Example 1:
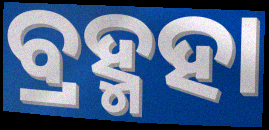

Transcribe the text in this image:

ବ୍ରହ୍ମହା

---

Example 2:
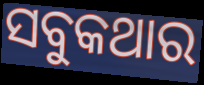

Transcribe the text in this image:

ସବୁକଥାର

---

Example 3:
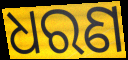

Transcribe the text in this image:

ଧରଣ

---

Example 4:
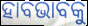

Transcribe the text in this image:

ହାବଭାବକୁ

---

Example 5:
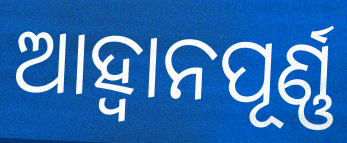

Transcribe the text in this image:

ଆହ୍ବାନପୂର୍ଣ୍ଣ